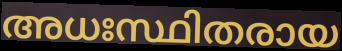
അധഃസ്ഥിതരായ